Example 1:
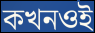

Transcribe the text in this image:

কখনওই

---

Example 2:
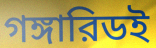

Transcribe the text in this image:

গঙ্গারিডই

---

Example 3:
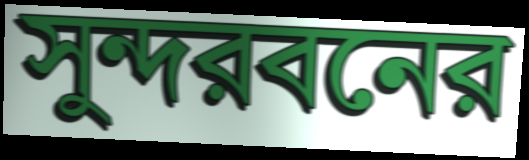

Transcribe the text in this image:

সুন্দরবনের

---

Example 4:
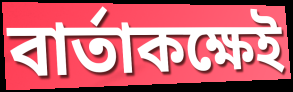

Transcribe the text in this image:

বার্তাকক্ষেই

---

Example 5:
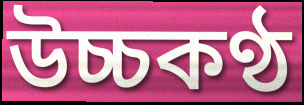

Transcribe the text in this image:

উচ্চকণ্ঠ